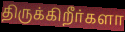
திருக்கிறீர்களா